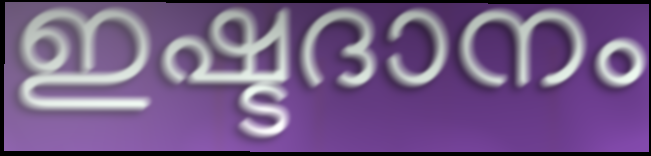
ഇഷ്ടദാനം